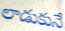
లాడుకునే